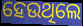
ହେଉଥିଲେ